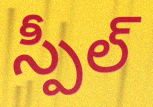
స్పీల్